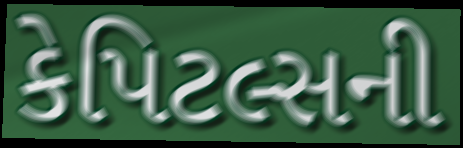
કેપિટલ્સની